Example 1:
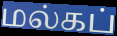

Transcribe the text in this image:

மல்கப்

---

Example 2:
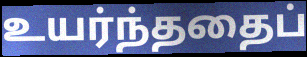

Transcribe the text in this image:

உயர்ந்ததைப்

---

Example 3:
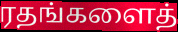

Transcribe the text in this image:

ரதங்களைத்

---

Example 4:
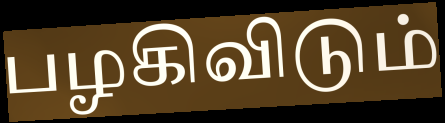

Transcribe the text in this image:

பழகிவிடும்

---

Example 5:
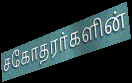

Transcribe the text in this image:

சகோதரர்களின்